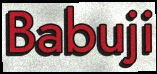
Babuji